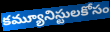
కమ్యూనిస్టులకోసం